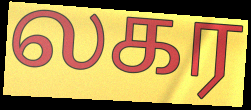
லகர